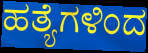
ಹತ್ಯೆಗಳಿಂದ